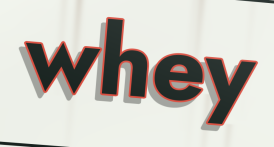
whey